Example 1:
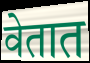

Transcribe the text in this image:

वेतात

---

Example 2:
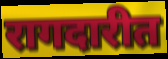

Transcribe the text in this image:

रागदारीत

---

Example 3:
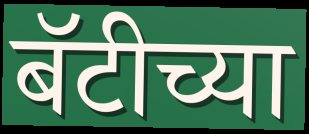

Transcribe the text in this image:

बॅटीच्या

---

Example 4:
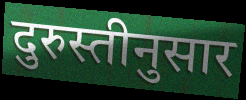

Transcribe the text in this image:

दुरुस्तीनुसार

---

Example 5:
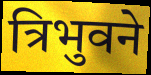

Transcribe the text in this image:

त्रिभुवने